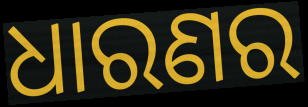
ଧାରଣର